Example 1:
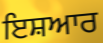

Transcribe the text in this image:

ਇਸ਼ਆਰ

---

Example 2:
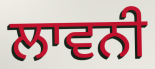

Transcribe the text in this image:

ਲਾਵਨੀ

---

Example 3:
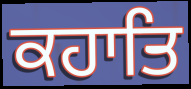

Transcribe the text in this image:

ਕਹਾਤਿ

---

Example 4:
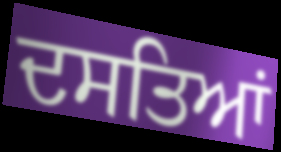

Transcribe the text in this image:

ਦਸਤਿਆਂ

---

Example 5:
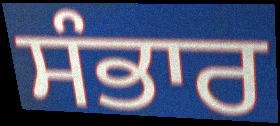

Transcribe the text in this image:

ਸੰਭਾਰ